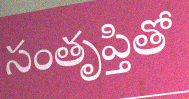
సంతృప్తితో